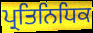
ਪ੍ਰਤਿਨਿਧਿਕ